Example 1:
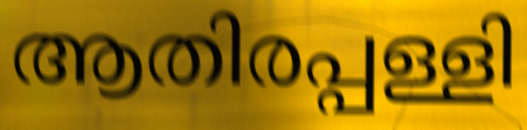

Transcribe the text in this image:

ആതിരപ്പള്ളി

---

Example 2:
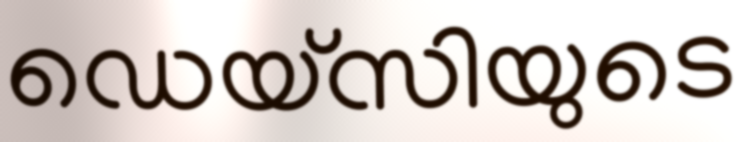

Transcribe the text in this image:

ഡെയ്സിയുടെ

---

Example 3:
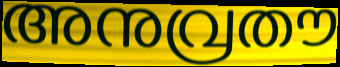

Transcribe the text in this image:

അനുവ്രതൗ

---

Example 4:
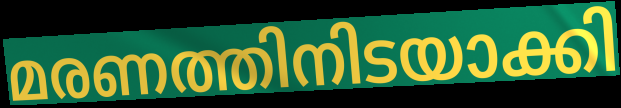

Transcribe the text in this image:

മരണത്തിനിടയാക്കി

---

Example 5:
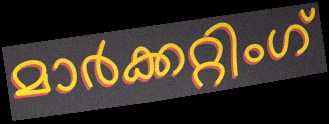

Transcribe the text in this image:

മാർക്കറ്റിംഗ്